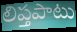
లిప్తపాటు